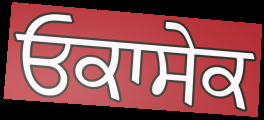
ਓਕਾਸੇਕ